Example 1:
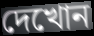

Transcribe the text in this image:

দেখোন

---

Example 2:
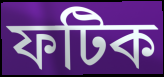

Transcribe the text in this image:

ফটিক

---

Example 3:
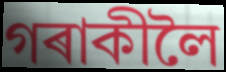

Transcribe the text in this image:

গৰাকীলৈ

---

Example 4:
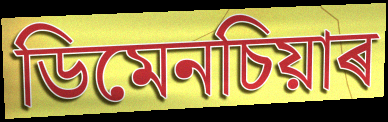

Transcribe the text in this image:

ডিমেনচিয়াৰ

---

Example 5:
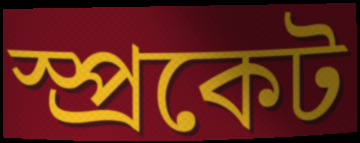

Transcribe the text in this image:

স্প্ৰকেট